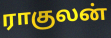
ராகுலன்